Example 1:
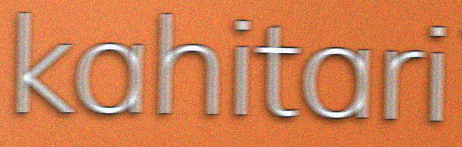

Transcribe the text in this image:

kahitari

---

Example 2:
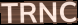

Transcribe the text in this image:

TRNC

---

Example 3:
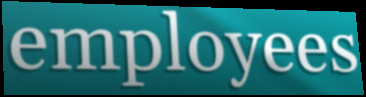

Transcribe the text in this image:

employees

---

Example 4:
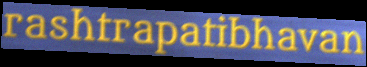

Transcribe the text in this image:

rashtrapatibhavan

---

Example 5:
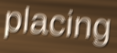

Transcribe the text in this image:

placing